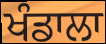
ਖੰਡਾਲਾ